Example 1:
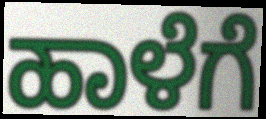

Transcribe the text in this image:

ಹಾಳೆಗೆ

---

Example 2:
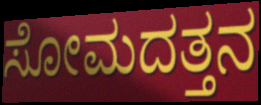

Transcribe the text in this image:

ಸೋಮದತ್ತನ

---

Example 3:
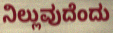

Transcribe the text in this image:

ನಿಲ್ಲುವುದೆಂದು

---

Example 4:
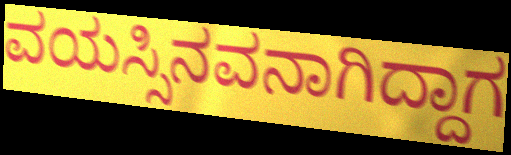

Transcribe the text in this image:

ವಯಸ್ಸಿನವನಾಗಿದ್ದಾಗ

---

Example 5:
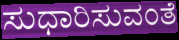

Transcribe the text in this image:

ಸುಧಾರಿಸುವಂತೆ